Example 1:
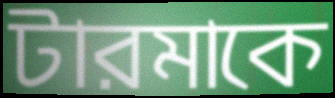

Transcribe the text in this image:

টারমাকে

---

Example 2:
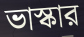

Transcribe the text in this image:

ভাস্কার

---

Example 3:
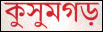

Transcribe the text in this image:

কুসুমগড়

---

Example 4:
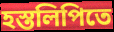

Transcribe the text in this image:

হস্তলিপিতে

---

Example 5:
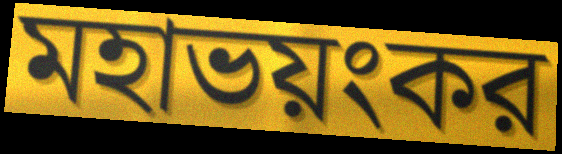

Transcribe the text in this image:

মহাভয়ংকর